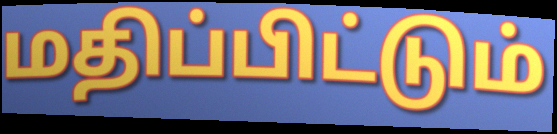
மதிப்பிட்டும்